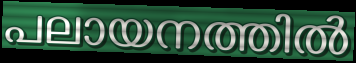
പലായനത്തിൽ